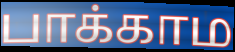
பாக்காம